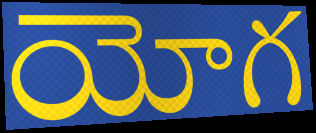
యోగ